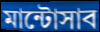
মান্টোসাব